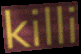
killi